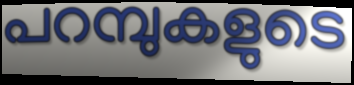
പറമ്പുകളുടെ